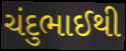
ચંદુભાઈથી